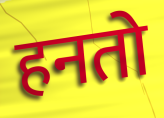
हनतो